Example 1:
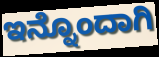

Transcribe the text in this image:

ಇನ್ನೊಂದಾಗಿ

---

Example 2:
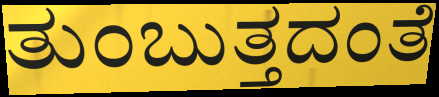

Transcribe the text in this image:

ತುಂಬುತ್ತದಂತೆ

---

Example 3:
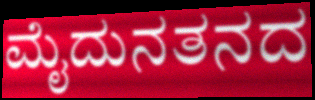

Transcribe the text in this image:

ಮೈದುನತನದ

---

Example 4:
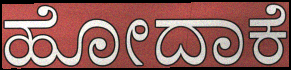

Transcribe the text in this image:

ಹೋದಾಕೆ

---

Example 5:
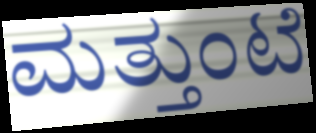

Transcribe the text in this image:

ಮತ್ತುಂಟೆ